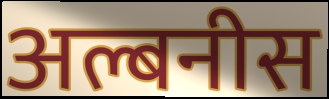
अल्बनीस